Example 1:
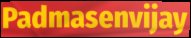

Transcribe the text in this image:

Padmasenvijay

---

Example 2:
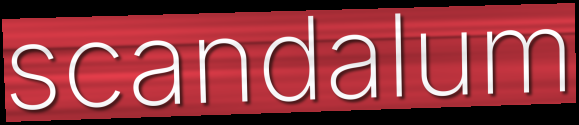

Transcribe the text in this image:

scandalum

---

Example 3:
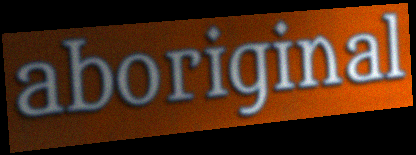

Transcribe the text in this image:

aboriginal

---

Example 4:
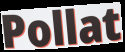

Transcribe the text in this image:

Pollat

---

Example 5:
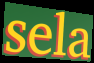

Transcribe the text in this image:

sela